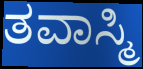
ತವಾಸ್ಮಿ